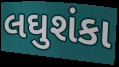
લઘુશંકા